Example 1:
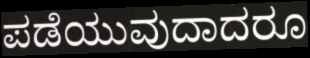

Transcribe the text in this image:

ಪಡೆಯುವುದಾದರೂ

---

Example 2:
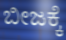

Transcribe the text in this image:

ಬೀಜಕ್ಕೆ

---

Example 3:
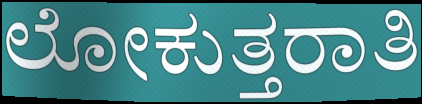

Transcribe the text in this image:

ಲೋಕುತ್ತರಾತಿ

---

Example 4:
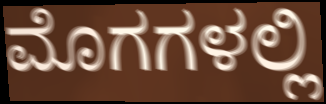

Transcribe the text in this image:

ಮೊಗಗಳಲ್ಲಿ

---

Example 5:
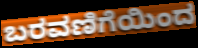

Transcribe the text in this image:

ಬರವಣಿಗೆಯಿಂದ